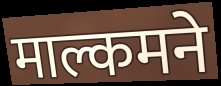
माल्कमने